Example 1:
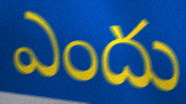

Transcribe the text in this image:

ఎందు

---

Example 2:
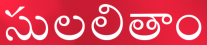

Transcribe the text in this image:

సులలితాం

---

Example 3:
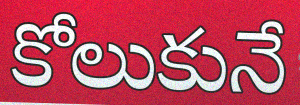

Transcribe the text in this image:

కోలుకునే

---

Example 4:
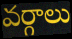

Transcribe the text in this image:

వర్గాలు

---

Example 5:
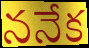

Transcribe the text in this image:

ననేక